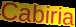
Cabiria